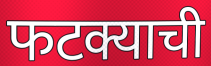
फटक्याची